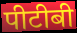
पीटीबी